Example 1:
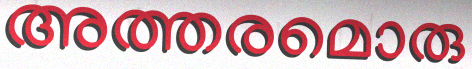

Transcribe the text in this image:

അത്തരമൊരു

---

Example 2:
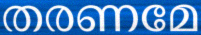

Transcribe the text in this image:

തരണമേ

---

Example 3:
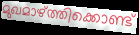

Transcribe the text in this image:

മുഖമാഴ്ത്തിക്കൊണ്ട്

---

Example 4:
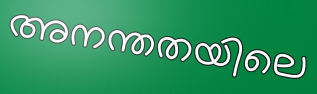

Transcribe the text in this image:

അനന്തതയിലെ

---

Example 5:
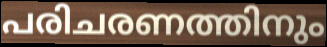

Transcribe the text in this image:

പരിചരണത്തിനും